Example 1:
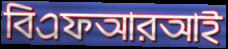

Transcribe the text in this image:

বিএফআরআই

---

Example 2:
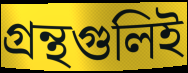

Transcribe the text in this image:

গ্রন্থগুলিই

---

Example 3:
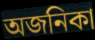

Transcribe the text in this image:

অজনিকা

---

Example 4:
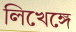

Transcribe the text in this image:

লিখেঙ্গে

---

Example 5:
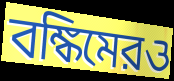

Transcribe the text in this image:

বঙ্কিমেরও